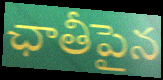
ఛాతీపైన